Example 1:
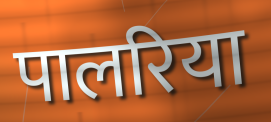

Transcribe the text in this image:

पालरिया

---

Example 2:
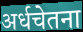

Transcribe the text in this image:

अर्धचेतना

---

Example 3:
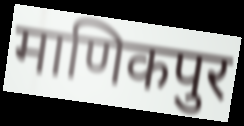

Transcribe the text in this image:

माणिकपुर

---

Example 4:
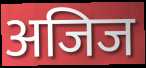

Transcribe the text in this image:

अजिज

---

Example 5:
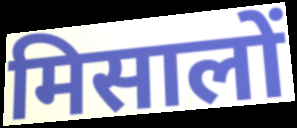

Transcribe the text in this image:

मिसालों